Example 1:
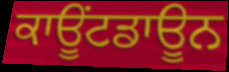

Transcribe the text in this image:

ਕਾਊਂਟਡਾਊਨ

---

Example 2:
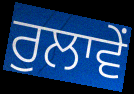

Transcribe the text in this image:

ਰੁਲਾਵੇਂ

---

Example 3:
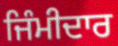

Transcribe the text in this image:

ਜਿੰਮੀਦਾਰ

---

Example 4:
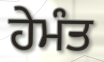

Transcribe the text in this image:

ਹੇਮੰਤ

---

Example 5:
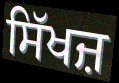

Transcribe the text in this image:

ਸਿੱਖਜ਼